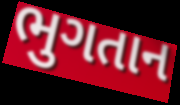
ભુગતાન